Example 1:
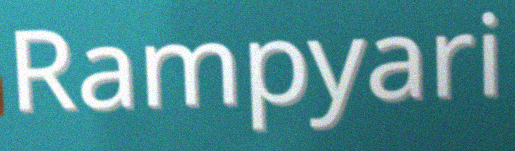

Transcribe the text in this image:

Rampyari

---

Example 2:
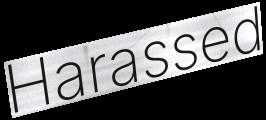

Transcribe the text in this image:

Harassed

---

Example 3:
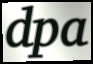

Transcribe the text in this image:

dpa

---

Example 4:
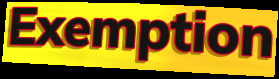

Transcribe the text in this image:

Exemption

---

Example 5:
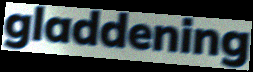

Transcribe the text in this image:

gladdening